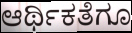
ಆರ್ಥಿಕತೆಗೂ